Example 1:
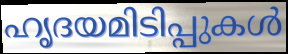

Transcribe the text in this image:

ഹൃദയമിടിപ്പുകൾ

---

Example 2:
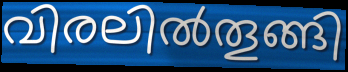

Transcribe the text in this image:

വിരലിൽതൂങ്ങി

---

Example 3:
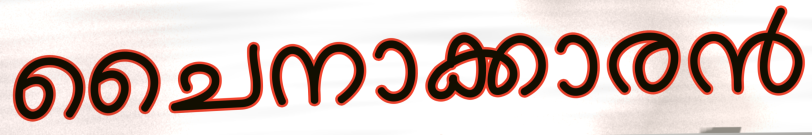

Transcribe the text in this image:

ചൈനാക്കാരൻ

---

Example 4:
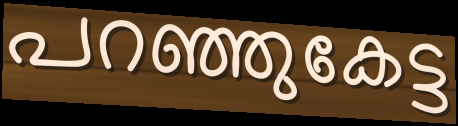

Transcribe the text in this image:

പറഞ്ഞുകേട്ട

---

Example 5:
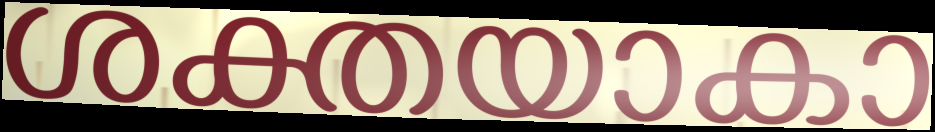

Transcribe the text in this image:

ശക്തയാകാ